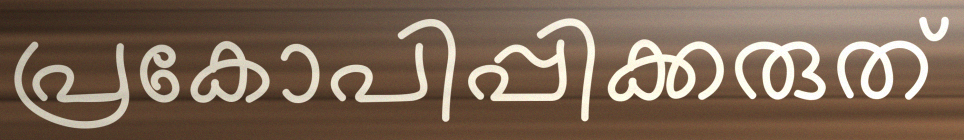
പ്രകോപിപ്പിക്കരുത്